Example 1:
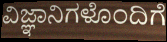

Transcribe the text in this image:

ವಿಜ್ಞಾನಿಗಳೊಂದಿಗೆ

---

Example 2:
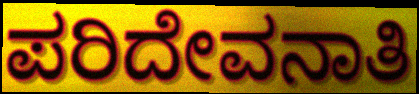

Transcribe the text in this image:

ಪರಿದೇವನಾತಿ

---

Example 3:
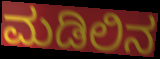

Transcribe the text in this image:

ಮಡಿಲಿನ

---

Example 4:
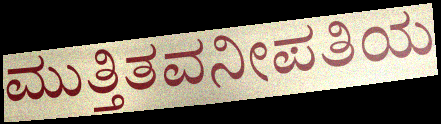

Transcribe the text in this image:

ಮುತ್ತಿತವನೀಪತಿಯ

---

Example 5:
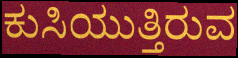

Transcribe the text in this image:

ಕುಸಿಯುತ್ತಿರುವ